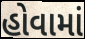
હોવામાં